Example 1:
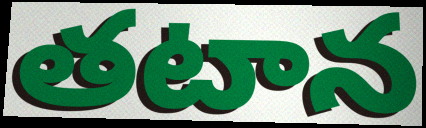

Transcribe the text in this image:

తటాన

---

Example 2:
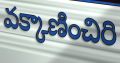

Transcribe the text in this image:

వక్కాణించిరి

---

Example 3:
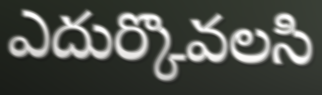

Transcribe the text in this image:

ఎదుర్కొవలసి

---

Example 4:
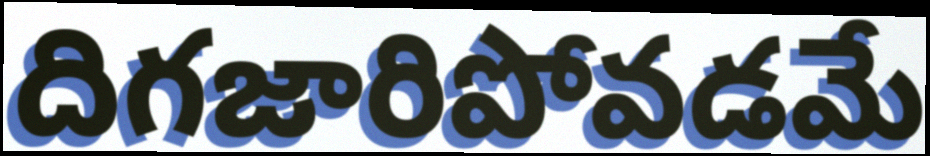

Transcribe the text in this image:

దిగజారిపోవడమే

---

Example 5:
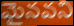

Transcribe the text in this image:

మైనవని